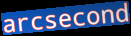
arcsecond